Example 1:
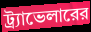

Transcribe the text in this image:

ট্র্যাভেলারের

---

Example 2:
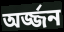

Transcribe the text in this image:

অর্জ্জন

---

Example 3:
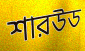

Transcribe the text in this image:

শারউড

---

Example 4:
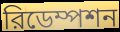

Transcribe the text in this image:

রিডেম্পশন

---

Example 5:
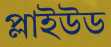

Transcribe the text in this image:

প্লাইউড